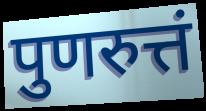
पुणरुत्तं